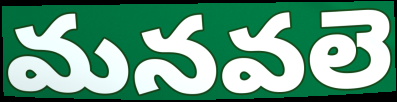
మనవలె